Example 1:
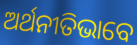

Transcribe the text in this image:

ଅର୍ଥନୀତିଭାବେ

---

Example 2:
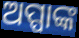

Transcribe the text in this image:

ଅପ୍ପାଙ୍କ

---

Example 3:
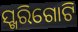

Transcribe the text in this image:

ସ୍ଖରିଗୋଟି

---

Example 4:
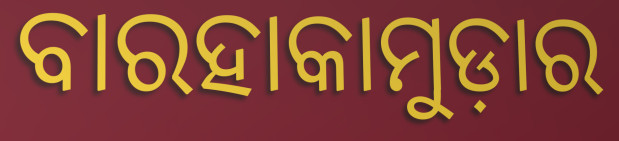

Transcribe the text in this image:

ବାରହାକାମୁଡ଼ାର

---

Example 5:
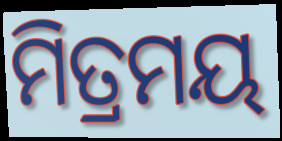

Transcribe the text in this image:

ମିତ୍ରମୟ